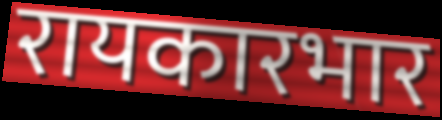
रायकारभार